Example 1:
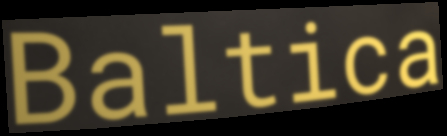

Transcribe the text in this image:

Baltica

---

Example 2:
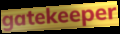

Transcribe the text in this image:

gatekeeper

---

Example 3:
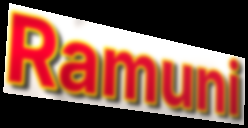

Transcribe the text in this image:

Ramuni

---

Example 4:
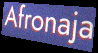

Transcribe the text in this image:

Afronaja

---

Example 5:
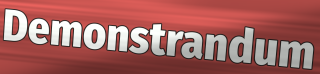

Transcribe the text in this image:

Demonstrandum